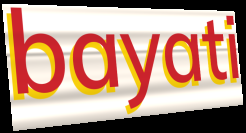
bayati